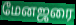
மேனஜரை